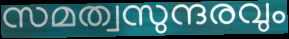
സമത്വസുന്ദരവും